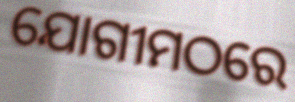
ଯୋଗୀମଠରେ